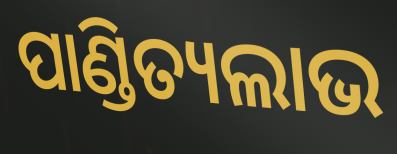
ପାଣ୍ଡିତ୍ୟଲାଭ